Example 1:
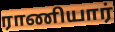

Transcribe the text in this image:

ராணியார்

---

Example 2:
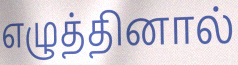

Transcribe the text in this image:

எழுத்தினால்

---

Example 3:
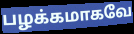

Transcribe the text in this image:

பழக்கமாகவே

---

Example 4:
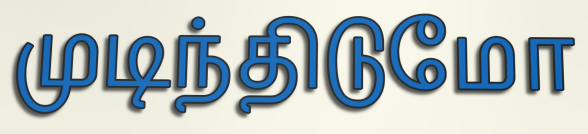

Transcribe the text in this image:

முடிந்திடுமோ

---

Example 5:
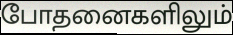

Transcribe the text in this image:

போதனைகளிலும்